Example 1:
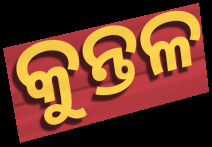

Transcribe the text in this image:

କୁନ୍ତଳ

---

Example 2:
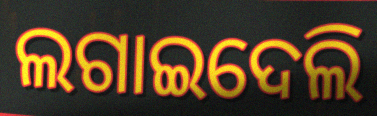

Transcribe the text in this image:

ଲଗାଇଦେଲି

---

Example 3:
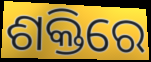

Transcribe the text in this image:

ଶକ୍ତିରେ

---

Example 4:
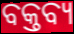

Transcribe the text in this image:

ବକ୍ତବ୍ଯ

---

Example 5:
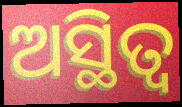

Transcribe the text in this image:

ଅସ୍ଥିତ୍ୱ